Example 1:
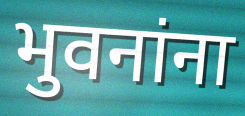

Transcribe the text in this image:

भुवनांना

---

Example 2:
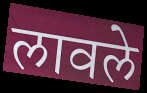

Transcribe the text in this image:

लावले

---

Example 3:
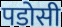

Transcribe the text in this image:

पडोसी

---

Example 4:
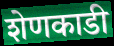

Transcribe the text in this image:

शेणकाडी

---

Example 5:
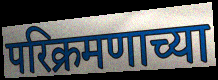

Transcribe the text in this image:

परिक्रमणाच्या